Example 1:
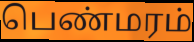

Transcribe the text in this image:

பெண்மரம்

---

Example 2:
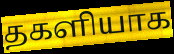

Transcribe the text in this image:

தகளியாக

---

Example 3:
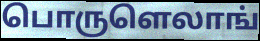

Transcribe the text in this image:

பொருளெலாங்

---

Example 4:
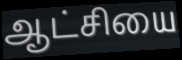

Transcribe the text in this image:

ஆட்சியை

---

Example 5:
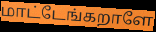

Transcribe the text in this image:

மாட்டேங்கறாளே